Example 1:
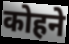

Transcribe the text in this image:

कोहने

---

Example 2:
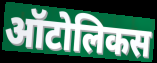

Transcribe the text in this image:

ऑटोलिकस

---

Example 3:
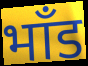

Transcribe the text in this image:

भाँड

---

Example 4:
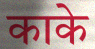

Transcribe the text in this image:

काके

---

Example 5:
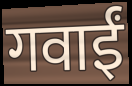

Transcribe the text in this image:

गवाईं